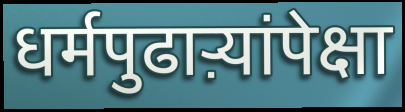
धर्मपुढाऱ्‍यांपेक्षा